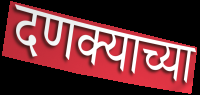
दणक्याच्या